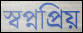
স্বপ্নপ্রিয়